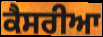
ਕੈਸਰੀਆ